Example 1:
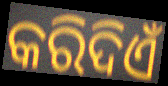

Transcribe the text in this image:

କରିଦିଏଁ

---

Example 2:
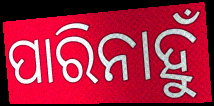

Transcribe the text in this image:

ପାରିନାହୁଁ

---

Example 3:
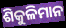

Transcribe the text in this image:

ଶିକୁଳିମାନ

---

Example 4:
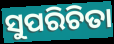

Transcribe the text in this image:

ସୁପରିଚିତା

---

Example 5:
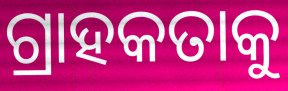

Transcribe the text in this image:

ଗ୍ରାହକତାକୁ